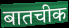
बातचीक